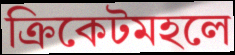
ক্রিকেটমহলে